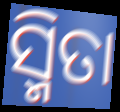
ସ୍ମିତା